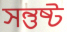
সন্তুষ্ট